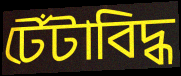
টেঁটাবিদ্ধ